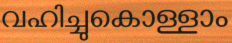
വഹിച്ചുകൊള്ളാം